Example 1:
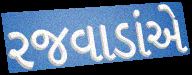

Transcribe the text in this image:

રજવાડાંએ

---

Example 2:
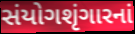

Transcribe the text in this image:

સંયોગશૃંગારનાં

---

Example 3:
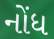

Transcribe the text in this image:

નોંધ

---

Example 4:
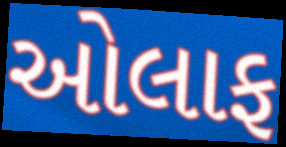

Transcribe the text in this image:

ઓલાફ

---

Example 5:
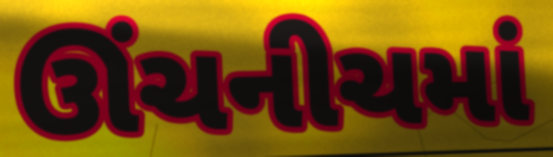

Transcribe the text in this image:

ઊંચનીચમાં